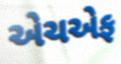
એચએફ